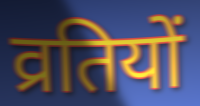
व्रतियों